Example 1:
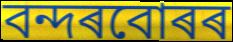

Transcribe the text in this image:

বন্দৰবোৰৰ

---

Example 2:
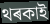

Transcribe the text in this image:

থৰকাই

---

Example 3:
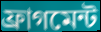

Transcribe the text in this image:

ফ্ৰাগমেন্ট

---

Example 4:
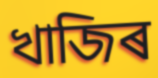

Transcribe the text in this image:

খাজিৰ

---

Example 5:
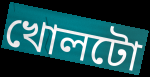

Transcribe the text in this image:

খোলটো